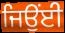
ਜਿਉਂਈ